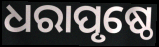
ଧରାପୃଷ୍ଠେ